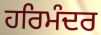
ਹਰਿਮੰਦਰ